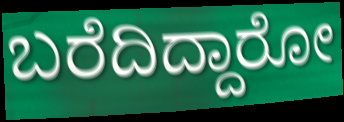
ಬರೆದಿದ್ದಾರೋ